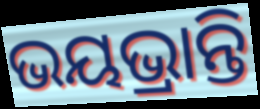
ଭୟଭ୍ରାନ୍ତି